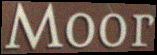
Moor